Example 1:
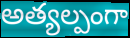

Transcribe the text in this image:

అత్యల్పంగా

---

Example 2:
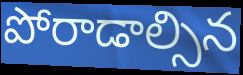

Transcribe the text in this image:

పోరాడాల్సిన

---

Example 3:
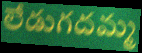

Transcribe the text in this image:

లేడుగదమ్మ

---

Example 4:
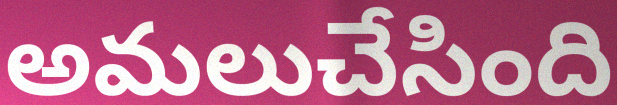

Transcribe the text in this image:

అమలుచేసింది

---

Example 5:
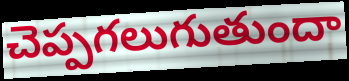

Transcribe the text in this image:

చెప్పగలుగుతుందా